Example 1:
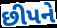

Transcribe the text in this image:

છીપને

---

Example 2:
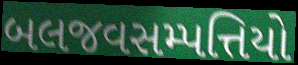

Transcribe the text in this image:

બલજવસમ્પત્તિયો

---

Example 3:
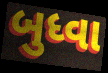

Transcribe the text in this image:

બુધ્વા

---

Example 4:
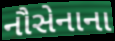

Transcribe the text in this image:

નૌસેનાના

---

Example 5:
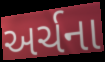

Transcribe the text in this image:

અર્ચના